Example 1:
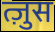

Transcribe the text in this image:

त्ज़ुस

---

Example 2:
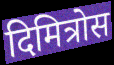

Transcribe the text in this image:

दिमित्रोस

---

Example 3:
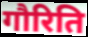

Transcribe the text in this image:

गौरिति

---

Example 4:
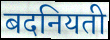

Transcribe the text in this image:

बदनियती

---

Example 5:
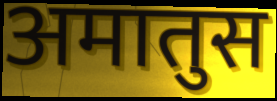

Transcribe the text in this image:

अमातुस